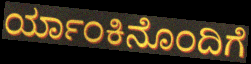
ರ್ಯಾಂಕಿನೊಂದಿಗೆ